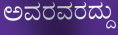
ಅವರವರದ್ದು